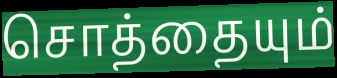
சொத்தையும்